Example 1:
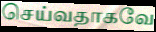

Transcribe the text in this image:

செய்வதாகவே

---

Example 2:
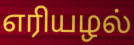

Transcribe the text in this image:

எரியழல்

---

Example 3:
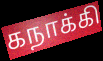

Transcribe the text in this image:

கநாக்கி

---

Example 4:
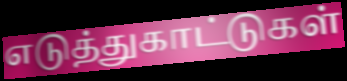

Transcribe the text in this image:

எடுத்துகாட்டுகள்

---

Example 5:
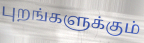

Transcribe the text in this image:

புறங்களுக்கும்